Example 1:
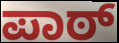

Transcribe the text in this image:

ಪಾಠ್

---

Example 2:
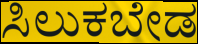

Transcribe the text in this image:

ಸಿಲುಕಬೇಡ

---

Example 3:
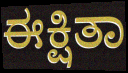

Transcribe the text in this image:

ಈಕ್ಷಿತಾ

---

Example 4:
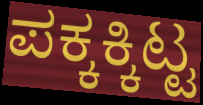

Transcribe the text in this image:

ಪಕ್ಕಕ್ಕಿಟ್ಟ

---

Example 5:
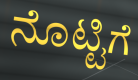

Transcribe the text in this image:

ನೊಟ್ಟಿಗೆ